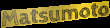
Matsumoto